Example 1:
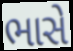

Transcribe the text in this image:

ભાસે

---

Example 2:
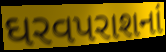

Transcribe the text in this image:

ઘરવપરાશનાં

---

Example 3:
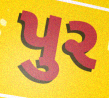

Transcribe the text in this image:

પુર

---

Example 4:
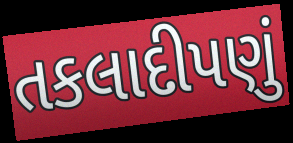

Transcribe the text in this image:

તકલાદીપણું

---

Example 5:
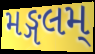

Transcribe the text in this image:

મઙ્ગલમ્